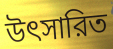
উৎসারিত